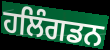
ਹਲਿੰਗਡਨ